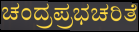
ಚಂದ್ರಪ್ರಭಚರಿತೆ